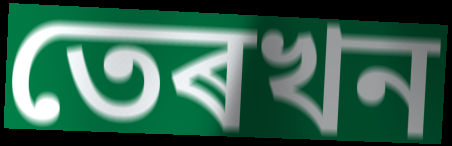
তেৰখন